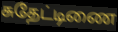
சுதேட்டிணை